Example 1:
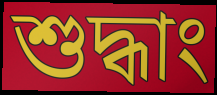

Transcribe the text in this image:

শুদ্ধাং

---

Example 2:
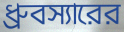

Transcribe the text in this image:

ধ্রুবস্যারের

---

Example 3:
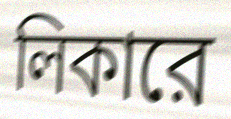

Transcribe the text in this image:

লিকারে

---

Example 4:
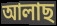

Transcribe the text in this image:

আলাছ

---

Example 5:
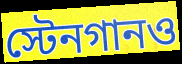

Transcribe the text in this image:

স্টেনগানও